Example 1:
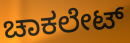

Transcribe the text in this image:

ಚಾಕಲೇಟ್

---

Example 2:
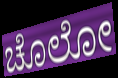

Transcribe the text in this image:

ಚೊಲೋ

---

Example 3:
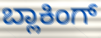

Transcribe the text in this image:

ಬ್ಲಾಕಿಂಗ್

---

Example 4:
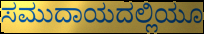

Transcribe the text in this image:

ಸಮುದಾಯದಲ್ಲಿಯೂ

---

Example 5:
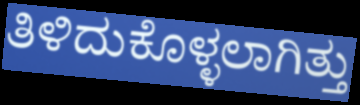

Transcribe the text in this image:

ತಿಳಿದುಕೊಳ್ಳಲಾಗಿತ್ತು